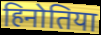
हिनोतिया